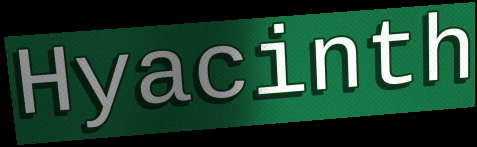
Hyacinth